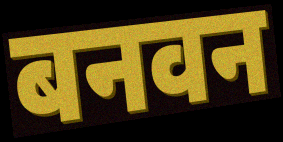
बनवन